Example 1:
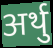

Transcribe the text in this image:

अर्थु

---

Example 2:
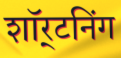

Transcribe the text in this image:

शॉर्टनिंग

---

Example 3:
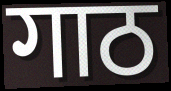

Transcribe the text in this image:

गाठ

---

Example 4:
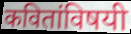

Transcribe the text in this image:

कवितांविषयी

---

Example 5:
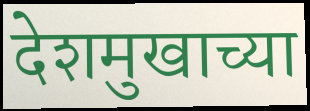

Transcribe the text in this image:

देशमुखाच्या